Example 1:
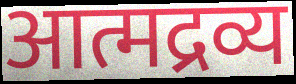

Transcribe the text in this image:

आत्मद्रव्य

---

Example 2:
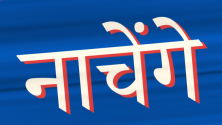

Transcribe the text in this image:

नाचेंगे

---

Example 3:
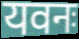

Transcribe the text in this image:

यवनः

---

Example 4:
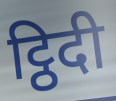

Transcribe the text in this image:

ट्ठिदी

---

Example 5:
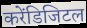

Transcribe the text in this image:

करेंडिजिटल